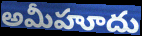
అమీహూదు